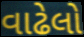
વાઢેલો